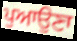
ਪੁਆਉਣਾ